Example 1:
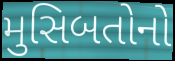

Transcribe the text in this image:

મુસિબતોનો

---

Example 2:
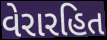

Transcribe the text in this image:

વેરારહિત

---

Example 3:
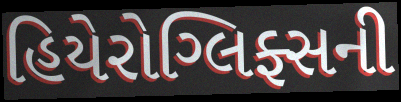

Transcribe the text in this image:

હિયેરોગ્લિફ્સની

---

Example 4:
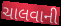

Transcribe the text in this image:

ચાલવાની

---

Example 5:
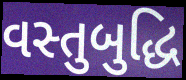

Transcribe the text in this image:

વસ્તુબુદ્ધિ